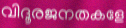
വിദൂരജനതകളേ